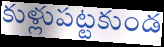
కుళ్లుపట్టకుండ